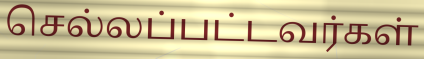
செல்லப்பட்டவர்கள்